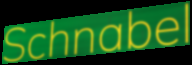
Schnabel